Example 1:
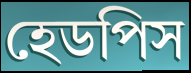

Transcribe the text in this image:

হেডপিস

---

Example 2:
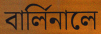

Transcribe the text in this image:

বার্লিনালে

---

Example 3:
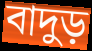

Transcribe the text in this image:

বাদুড়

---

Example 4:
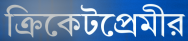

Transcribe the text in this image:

ক্রিকেটপ্রেমীর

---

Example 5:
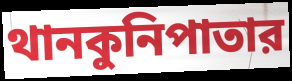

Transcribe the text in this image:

থানকুনিপাতার